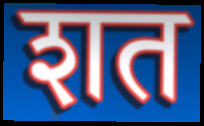
शत